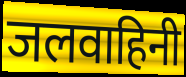
जलवाहिनी